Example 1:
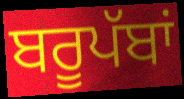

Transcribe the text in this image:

ਬਰੂਪੱਬਾਂ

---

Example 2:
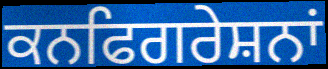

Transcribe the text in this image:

ਕਨਫਿਗਰੇਸ਼ਨਾਂ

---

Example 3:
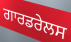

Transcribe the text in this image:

ਗਾਰਡਰੇਲਸ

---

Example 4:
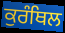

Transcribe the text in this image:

ਕੁਰੰਥਿਲ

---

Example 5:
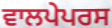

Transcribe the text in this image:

ਵਾਲਪੇਪਰਸ